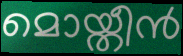
മൊയ്തീൻ